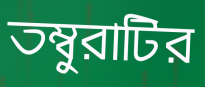
তম্বুরাটির